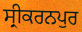
ਸ੍ਰੀਕਰਨਪੁਰ